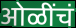
ओळींचं